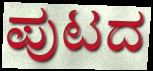
ಪುಟದ